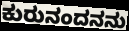
ಕುರುನಂದನನು